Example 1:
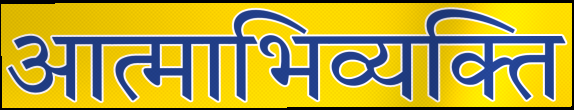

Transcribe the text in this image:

आत्माभिव्यक्ति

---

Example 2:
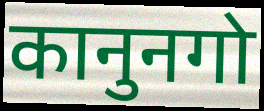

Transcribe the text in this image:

कानुनगो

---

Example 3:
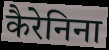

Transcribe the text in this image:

कैरेनिना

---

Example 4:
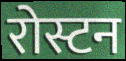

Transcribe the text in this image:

रोस्टन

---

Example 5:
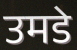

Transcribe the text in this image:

उमडे